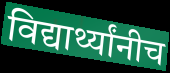
विद्यार्थ्यांनीच